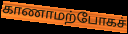
காணாமற்போகச்